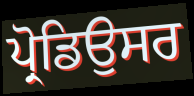
ਪ੍ਰੋਡਿਉਸਰ